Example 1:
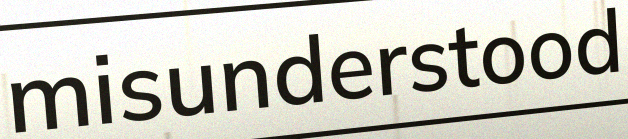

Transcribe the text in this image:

misunderstood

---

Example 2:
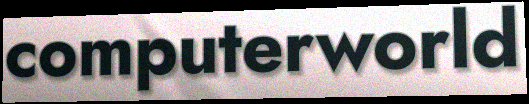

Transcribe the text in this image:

computerworld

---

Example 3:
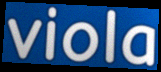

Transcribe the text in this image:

viola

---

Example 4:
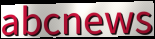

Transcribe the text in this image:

abcnews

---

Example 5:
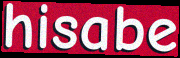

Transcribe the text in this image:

hisabe